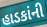
હાડકાંની